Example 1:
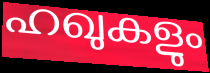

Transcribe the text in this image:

ഹഖുകളും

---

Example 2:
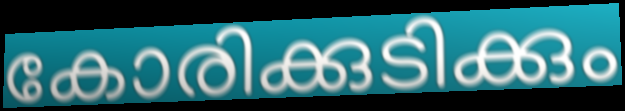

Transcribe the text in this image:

കോരിക്കുടിക്കും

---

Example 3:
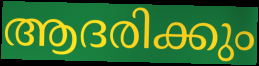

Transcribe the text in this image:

ആദരിക്കും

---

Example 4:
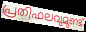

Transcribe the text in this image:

പ്രതിഫലവുമുണ്ട്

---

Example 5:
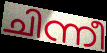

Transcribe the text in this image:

ചിന്നീ